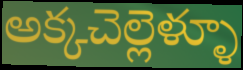
అక్కచెల్లెళ్ళూ